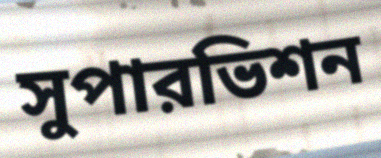
সুপারভিশন